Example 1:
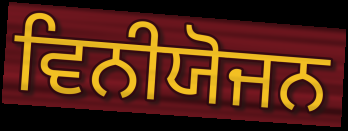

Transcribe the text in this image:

ਵਿਨੀਯੋਜਨ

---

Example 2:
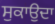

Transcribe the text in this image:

ਸੁਕਾਉਦਾ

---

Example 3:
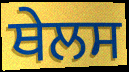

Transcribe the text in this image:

ਥੇਲਸ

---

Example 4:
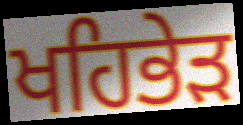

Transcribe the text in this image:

ਖਹਿਭੇੜ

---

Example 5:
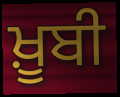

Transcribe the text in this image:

ਖ਼ੂਬੀ